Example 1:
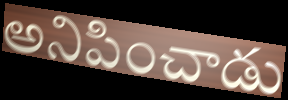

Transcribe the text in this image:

అనిపించాడు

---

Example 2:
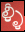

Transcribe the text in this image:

ళ్ళీ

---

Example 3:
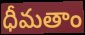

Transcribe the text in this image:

ధీమతాం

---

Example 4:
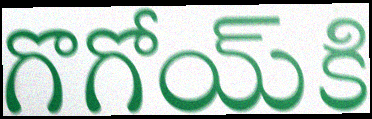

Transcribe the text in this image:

గొగోయ్‌కి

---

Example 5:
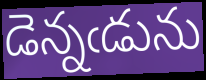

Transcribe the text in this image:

డెన్నఁడును